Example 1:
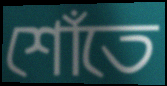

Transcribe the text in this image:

শোঁতে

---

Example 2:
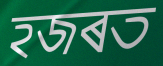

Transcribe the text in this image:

হজৰত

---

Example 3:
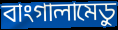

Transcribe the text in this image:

বাংগালামেডু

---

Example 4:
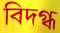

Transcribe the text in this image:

বিদগ্ধ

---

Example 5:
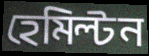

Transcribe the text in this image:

হেমিল্টন